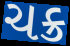
ચક્ર